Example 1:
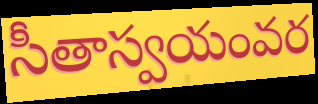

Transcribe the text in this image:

సీతాస్వయంవర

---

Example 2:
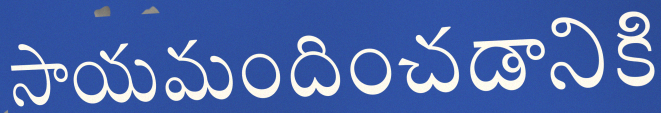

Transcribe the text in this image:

సాయమందించడానికి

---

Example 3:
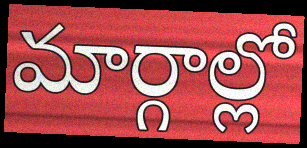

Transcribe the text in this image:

మార్గాల్లో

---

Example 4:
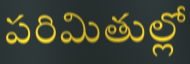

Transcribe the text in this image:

పరిమితుల్లో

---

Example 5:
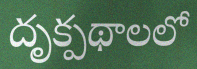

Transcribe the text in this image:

దృక్పథాలలో